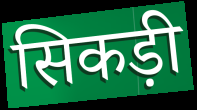
सिकड़ी